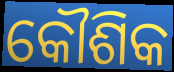
କୌଶିକ